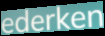
ederken